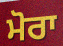
ਮੋਰਾ